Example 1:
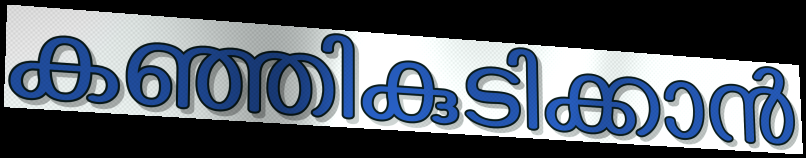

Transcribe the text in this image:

കഞ്ഞികുടിക്കാൻ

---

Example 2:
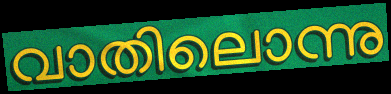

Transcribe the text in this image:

വാതിലൊന്നു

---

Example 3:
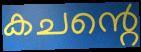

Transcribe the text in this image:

കചന്റെ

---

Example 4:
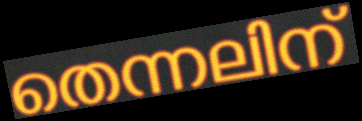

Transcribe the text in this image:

തെന്നലിന്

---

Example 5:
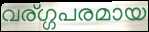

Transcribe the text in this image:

വര്ഗ്ഗപരമായ